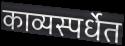
काव्यस्पर्धेत